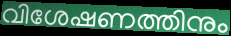
വിശേഷണത്തിനും